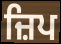
ਜ਼ਿਪ